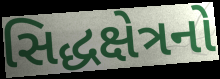
સિદ્ધક્ષેત્રનો